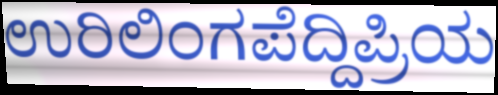
ಉರಿಲಿಂಗಪೆದ್ದಿಪ್ರಿಯ